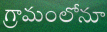
గ్రామంలోనూ